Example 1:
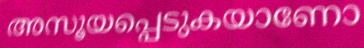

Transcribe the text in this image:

അസൂയപ്പെടുകയാണോ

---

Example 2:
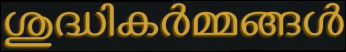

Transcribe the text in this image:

ശുദ്ധികർമ്മങ്ങൾ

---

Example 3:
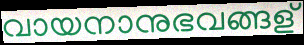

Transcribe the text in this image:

വായനാനുഭവങ്ങള്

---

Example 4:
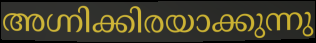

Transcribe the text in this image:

അഗ്നിക്കിരയാക്കുന്നു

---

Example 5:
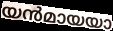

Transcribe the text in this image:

യൻമായയാ